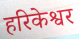
हरिकेश्वर